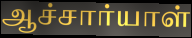
ஆச்சார்யாள்